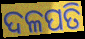
ଦଳପତି